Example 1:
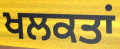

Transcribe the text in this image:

ਖਲਕਤਾਂ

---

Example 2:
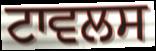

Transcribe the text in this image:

ਟਾਵਲਸ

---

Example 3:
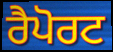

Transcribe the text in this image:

ਰੈਪੋਰਟ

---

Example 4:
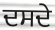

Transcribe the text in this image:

ਦਸਦੇ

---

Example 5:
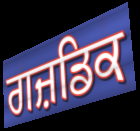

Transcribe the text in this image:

ਗਜ਼ਡਿਕ